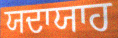
ਯਦਾਯਾਹ